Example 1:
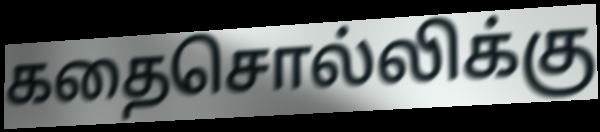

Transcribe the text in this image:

கதைசொல்லிக்கு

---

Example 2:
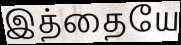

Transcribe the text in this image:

இத்தையே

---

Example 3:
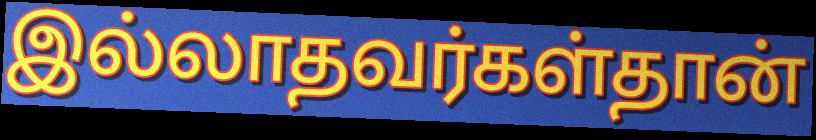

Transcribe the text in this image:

இல்லாதவர்கள்தான்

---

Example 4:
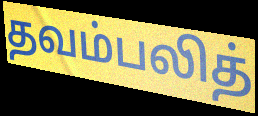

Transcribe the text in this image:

தவம்பலித்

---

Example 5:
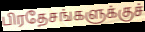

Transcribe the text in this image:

பிரதேசங்களுக்குச்